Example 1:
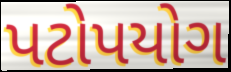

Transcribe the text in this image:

પટોપયોગ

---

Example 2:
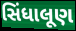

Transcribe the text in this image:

સિંધાલૂણ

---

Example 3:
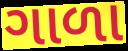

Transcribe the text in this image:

ગાળા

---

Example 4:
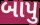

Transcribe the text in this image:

બાપુ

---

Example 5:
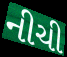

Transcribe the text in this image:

નીચી